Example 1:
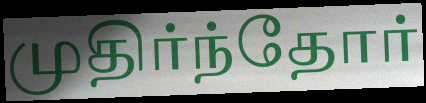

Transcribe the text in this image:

முதிர்ந்தோர்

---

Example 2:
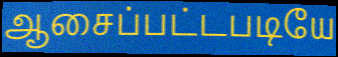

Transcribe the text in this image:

ஆசைப்பட்டபடியே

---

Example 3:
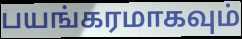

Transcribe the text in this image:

பயங்கரமாகவும்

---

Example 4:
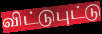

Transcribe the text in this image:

விட்டுபுட்டு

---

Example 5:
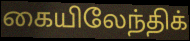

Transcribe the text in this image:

கையிலேந்திக்